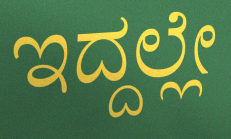
ಇದ್ದಲ್ಲೇ